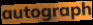
autograph